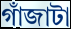
গাঁজাটা